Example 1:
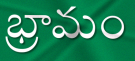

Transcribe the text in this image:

భ్రామం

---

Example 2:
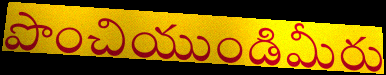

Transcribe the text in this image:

పొంచియుండిమీరు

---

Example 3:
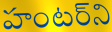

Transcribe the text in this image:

హంటర్‌ని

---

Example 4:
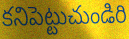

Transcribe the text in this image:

కనిపెట్టుచుండిరి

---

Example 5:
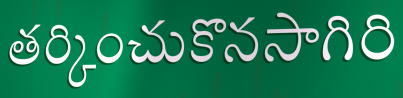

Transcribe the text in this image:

తర్కించుకొనసాగిరి